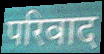
परिवाद